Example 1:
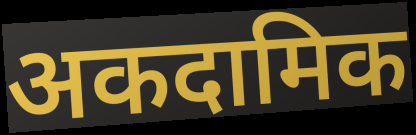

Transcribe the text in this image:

अकदामिक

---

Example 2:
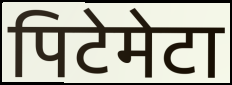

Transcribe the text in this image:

पिटेमेटा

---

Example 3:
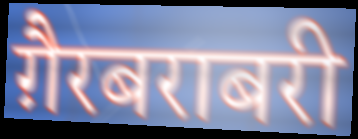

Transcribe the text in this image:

ग़ैरबराबरी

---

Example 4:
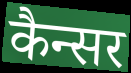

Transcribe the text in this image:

कैन्सर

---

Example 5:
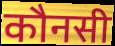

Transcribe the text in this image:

कौनसी